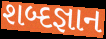
શબ્દજ્ઞાન